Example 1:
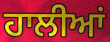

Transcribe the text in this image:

ਹਾਲੀਆਂ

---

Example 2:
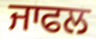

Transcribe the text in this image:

ਜਾਫਲ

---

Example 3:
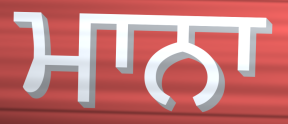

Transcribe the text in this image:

ਮਾਨਾ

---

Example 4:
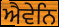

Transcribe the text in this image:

ਐਵੇਨਿ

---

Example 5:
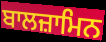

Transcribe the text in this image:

ਬਾਲਜ਼ਾਮਿਨ